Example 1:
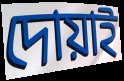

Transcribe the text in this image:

দোয়াই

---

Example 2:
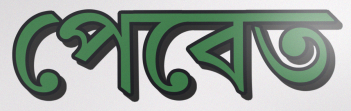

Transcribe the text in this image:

পেবেত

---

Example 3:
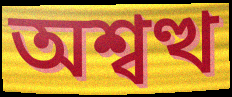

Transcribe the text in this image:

অশ্বত্থ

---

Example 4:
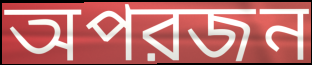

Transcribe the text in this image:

অপরজন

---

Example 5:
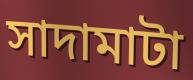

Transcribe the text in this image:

সাদামাটা